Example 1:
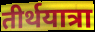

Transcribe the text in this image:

तीर्थयात्रा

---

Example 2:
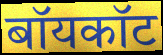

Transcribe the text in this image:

बॉयकॉट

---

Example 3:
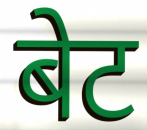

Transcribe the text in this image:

बेट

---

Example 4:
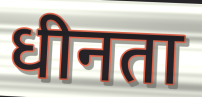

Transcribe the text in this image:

धीनता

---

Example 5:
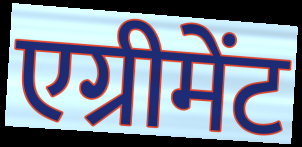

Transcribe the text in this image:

एग्रीमेंट